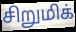
சிறுமிக்